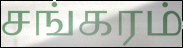
சங்கரம்